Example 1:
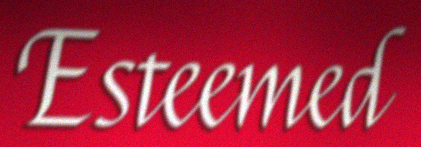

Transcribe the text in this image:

Esteemed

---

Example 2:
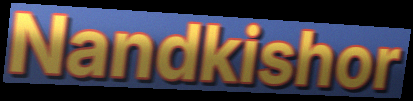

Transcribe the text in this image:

Nandkishor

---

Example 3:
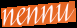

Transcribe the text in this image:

nennu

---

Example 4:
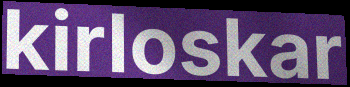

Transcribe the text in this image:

kirloskar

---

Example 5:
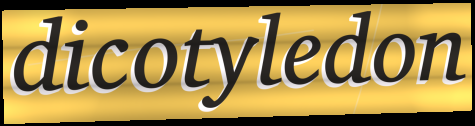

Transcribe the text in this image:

dicotyledon